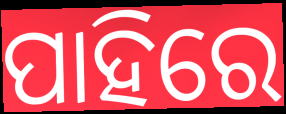
ପାହିରେ